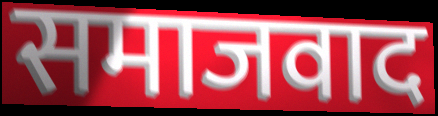
समाजवाद